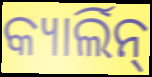
କ୍ୟାର୍ଲିନ୍